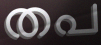
തപ